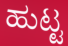
ಹುಟ್ಟ